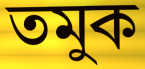
তমুক